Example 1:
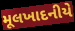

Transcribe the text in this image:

મૂલખાદનીયે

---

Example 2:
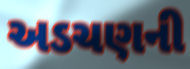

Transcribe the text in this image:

અડચણની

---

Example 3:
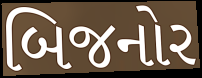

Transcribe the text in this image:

બિજનોર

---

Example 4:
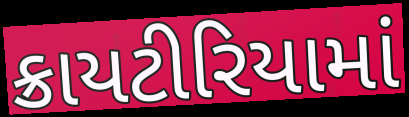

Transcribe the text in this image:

ક્રાયટીરિયામાં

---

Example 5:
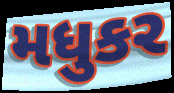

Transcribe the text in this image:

મધુકર